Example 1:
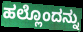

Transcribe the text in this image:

ಹಲ್ಲೊಂದನ್ನು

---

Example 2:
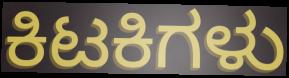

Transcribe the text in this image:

ಕಿಟಕಿಗಳು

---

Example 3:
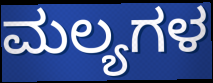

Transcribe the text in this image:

ಮಲ್ಯಗಳ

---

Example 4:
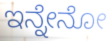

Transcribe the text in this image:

ಇನ್ನೇನೋ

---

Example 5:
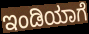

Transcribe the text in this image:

ಇಂಡಿಯಾಗೆ